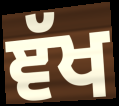
ਞੱਖ